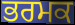
ਭਰਮਕ